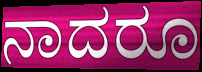
ನಾದರೂ